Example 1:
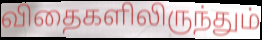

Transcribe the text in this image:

விதைகளிலிருந்தும்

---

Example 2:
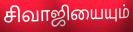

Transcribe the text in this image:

சிவாஜியையும்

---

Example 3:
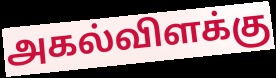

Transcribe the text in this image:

அகல்விளக்கு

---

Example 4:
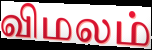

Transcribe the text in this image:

விமலம்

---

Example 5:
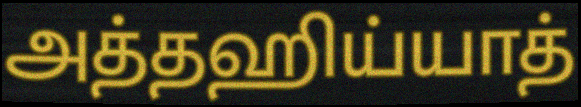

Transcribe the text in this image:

அத்தஹிய்யாத்